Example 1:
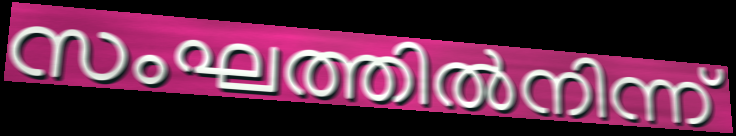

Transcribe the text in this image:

സംഘത്തിൽനിന്ന്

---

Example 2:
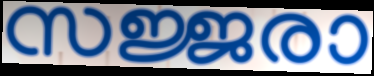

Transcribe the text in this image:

സജ്ജരാ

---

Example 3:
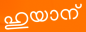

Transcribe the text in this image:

ഹുയാന്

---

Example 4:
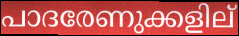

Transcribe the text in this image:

പാദരേണുക്കളില്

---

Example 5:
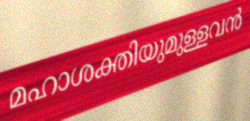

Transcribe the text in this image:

മഹാശക്തിയുമുള്ളവൻ